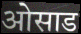
ओसाड